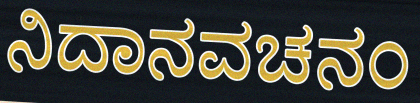
ನಿದಾನವಚನಂ